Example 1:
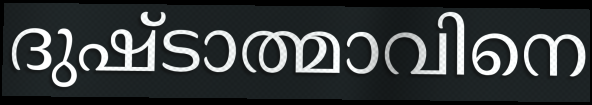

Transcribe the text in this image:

ദുഷ്ടാത്മാവിനെ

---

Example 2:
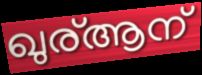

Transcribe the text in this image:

ഖുര്ആന്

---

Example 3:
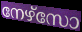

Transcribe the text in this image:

നേഴ്സോ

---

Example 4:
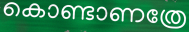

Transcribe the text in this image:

കൊണ്ടാണത്രേ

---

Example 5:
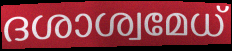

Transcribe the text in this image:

ദശാശ്വമേധ്